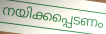
നയിക്കപ്പെടണം